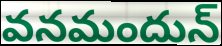
వనమందున్